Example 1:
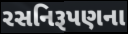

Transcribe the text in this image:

રસનિરૂપણના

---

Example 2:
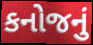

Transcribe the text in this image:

કનોજનું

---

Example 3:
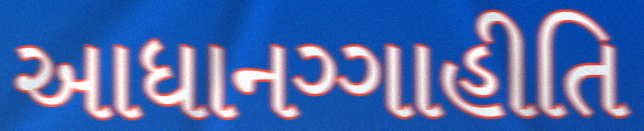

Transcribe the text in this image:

આધાનગ્ગાહીતિ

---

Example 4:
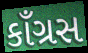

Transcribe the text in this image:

કાઁગ્રસ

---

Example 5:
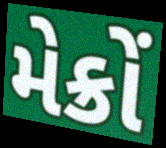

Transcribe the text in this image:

મેક્રોં